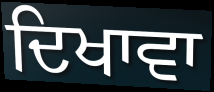
ਦਿਖਾਵਾ